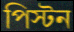
পিস্টন